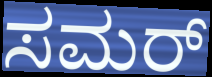
ಸಮರ್